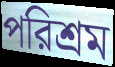
পরিশ্রম